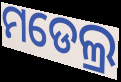
ମଡେଲ୍ର